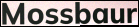
Mossbaur